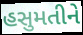
હસુમતીને